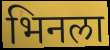
भिनला